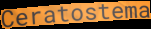
Ceratostema